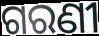
ଗରଣୀ